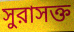
সুরাসক্ত